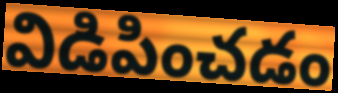
విడిపించడం